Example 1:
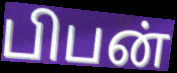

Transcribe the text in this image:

பிபன்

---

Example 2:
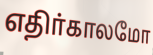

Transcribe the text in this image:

எதிர்காலமோ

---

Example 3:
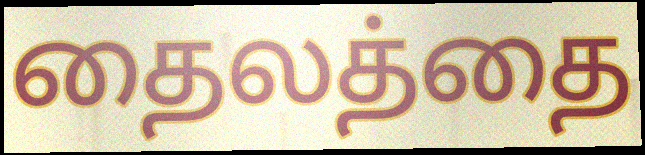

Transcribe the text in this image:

தைலத்தை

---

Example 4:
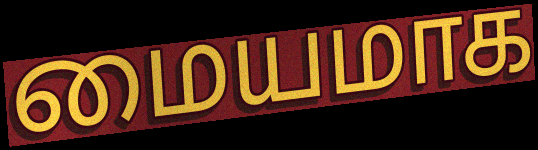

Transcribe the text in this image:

மையமாக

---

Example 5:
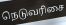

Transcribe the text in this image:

நெடுவரிசை